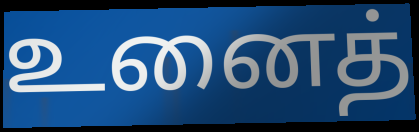
உனைத்